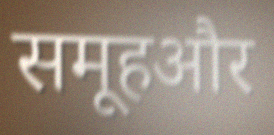
समूहऔर